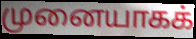
முனையாகக்